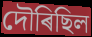
দৌৰিছিল